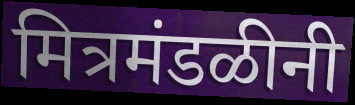
मित्रमंडळीनी